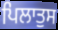
ਪਿਲਾਤੁਸ